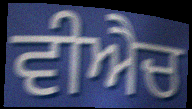
ਵੀਐਚ